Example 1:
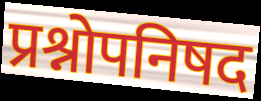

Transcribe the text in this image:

प्रश्नोपनिषद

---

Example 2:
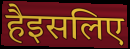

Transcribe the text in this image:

हैइसलिए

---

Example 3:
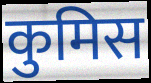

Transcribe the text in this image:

कुमिस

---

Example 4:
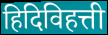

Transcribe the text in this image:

हिदिविहत्ती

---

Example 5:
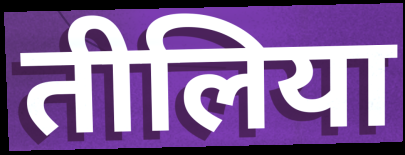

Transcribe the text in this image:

तीलिया